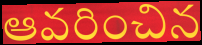
ఆవరించిన